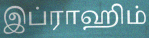
இப்ராஹிம்